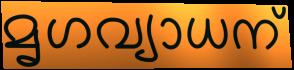
മൃഗവ്യാധന്